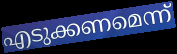
എടുക്കണമെന്ന്